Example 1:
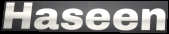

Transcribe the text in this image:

Haseen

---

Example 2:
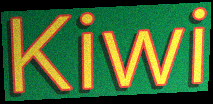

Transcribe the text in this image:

Kiwi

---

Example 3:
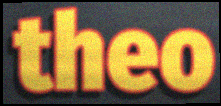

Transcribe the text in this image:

theo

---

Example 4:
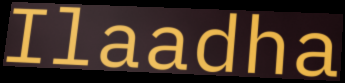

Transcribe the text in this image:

Ilaadha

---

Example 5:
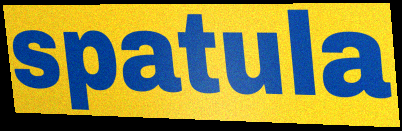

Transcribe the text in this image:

spatula